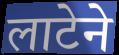
लाटेने